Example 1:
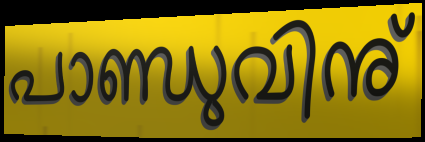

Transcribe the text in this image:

പാണ്ഡുവിനു്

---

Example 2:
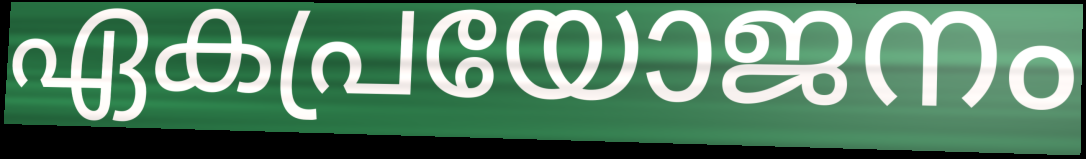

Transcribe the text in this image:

ഏകപ്രയോജനം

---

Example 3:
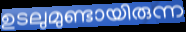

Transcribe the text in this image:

ഉടലുമുണ്ടായിരുന്ന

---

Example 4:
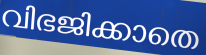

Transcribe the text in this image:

വിഭജിക്കാതെ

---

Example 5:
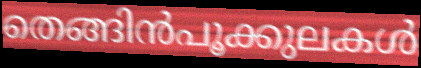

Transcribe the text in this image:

തെങ്ങിൻപൂക്കുലകൾ